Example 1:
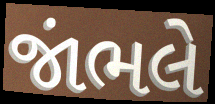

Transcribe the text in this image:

જાંભલે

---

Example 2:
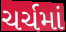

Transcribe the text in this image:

ચર્ચમાં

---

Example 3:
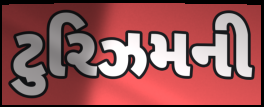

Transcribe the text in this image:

ટુરિઝમની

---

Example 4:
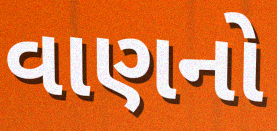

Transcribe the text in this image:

વાણનો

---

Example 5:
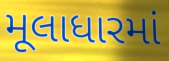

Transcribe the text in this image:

મૂલાધારમાં